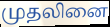
முதலினை